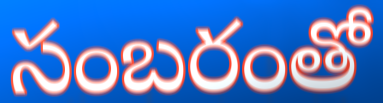
సంబరంతో